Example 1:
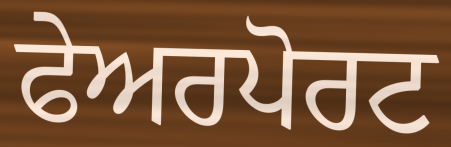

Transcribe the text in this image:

ਫੇਅਰਪੋਰਟ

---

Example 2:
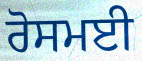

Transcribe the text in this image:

ਰੋਸਮਈ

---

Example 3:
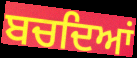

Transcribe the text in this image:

ਬਚਦਿਆਂ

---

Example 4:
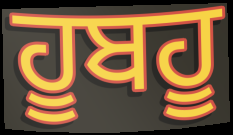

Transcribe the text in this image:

ਹੂਬਹੂ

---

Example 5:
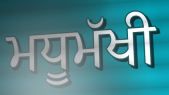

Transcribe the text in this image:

ਮਧੂਮੱਖੀ